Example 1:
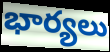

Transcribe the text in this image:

భార్యలు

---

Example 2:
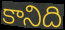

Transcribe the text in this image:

కానిది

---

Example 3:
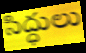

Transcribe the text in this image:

సిద్ధులు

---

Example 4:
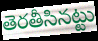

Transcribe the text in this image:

తెరతీసినట్టు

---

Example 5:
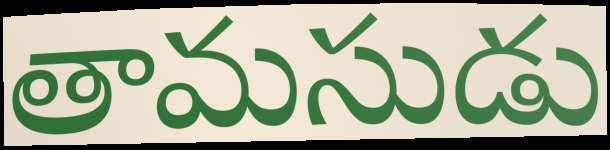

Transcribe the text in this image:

తామసుడు